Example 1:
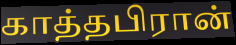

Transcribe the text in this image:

காத்தபிரான்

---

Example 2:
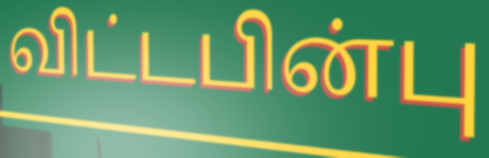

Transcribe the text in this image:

விட்டபின்பு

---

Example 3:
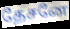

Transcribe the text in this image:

தேசனே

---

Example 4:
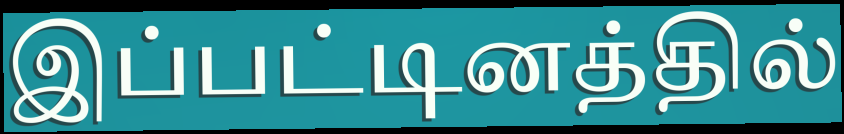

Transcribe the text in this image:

இப்பட்டினத்தில்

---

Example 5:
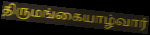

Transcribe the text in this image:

திருமங்கையாழ்வார்